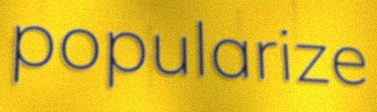
popularize